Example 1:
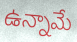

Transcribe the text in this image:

ఉన్నామే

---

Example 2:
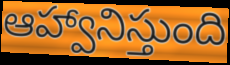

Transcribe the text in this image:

ఆహ్వానిస్తుంది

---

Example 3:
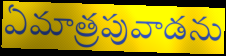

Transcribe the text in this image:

ఏమాత్రపువాడను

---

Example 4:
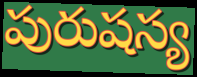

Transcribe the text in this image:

పురుషస్య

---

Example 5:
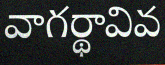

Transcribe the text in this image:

వాగర్థావివ